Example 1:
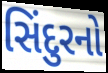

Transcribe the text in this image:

સિંદુરનો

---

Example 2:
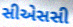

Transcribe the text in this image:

સીએસસી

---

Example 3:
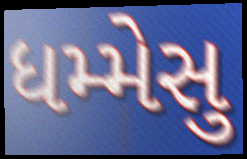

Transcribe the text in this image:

ધમ્મેસુ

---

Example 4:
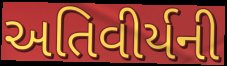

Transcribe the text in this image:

અતિવીર્યની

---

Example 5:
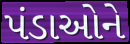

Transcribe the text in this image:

પંડાઓને